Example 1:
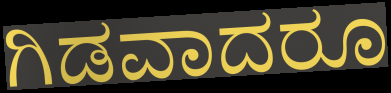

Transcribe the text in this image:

ಗಿಡವಾದರೂ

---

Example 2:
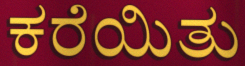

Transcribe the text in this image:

ಕರೆಯಿತು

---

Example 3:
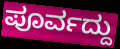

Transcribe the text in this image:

ಪೂರ್ವದ್ದು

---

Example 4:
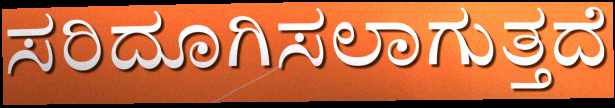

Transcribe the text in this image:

ಸರಿದೂಗಿಸಲಾಗುತ್ತದೆ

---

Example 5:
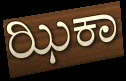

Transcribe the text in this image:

ಝಿಕಾ